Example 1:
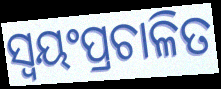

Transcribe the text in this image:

ସ୍ୱୟଂପ୍ରଚାଳିତ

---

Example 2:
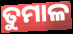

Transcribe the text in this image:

ତୁମାଳ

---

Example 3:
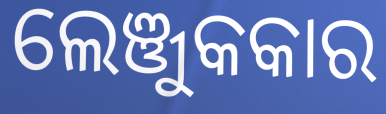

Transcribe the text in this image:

ଲେଞ୍ଜୁକକାର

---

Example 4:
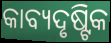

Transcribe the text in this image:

କାବ୍ୟଦୃଷ୍ଟିକ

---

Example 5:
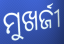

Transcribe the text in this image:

ମୁଖର୍ଜୀ